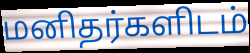
மனிதர்களிடம்